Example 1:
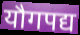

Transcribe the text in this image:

यौगपद्य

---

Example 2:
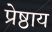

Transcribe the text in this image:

प्रेष्ठाय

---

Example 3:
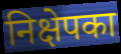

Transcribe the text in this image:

निक्षेपका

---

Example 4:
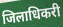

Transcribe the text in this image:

जिलाधिकरी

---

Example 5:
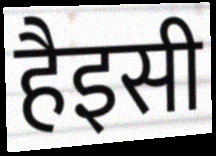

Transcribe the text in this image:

हैइसी